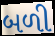
બળી